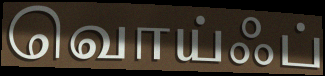
வொய்ஃப்